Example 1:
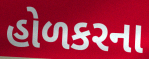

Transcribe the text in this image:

હોળકરના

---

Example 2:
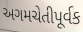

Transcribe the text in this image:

અગમચેતીપૂર્વક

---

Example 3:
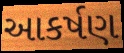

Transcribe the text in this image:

આકર્ષણ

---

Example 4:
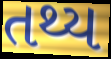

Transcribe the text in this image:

તથ્ય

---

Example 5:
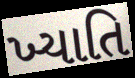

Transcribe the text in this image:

ખ્યાતિ